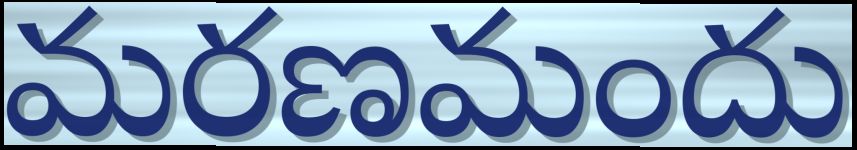
మరణమందు